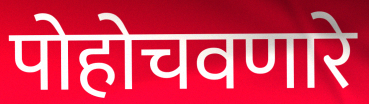
पोहोचवणारे